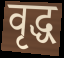
वृद्ध